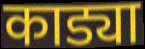
काड्या